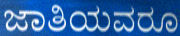
ಜಾತಿಯವರೂ